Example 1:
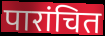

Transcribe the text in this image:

पारांचित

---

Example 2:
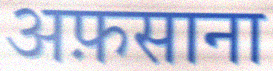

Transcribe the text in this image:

अफ़साना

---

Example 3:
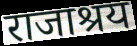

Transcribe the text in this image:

राजाश्रय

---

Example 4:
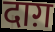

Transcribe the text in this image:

दाग़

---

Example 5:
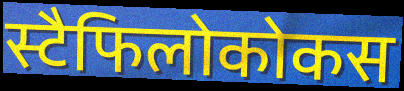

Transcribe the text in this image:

स्टैफिलोकोकस